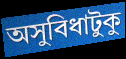
অসুবিধাটুকু